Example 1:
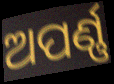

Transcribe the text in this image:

ଅପର୍ଣ୍ଣ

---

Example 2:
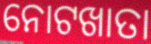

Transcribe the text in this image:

ନୋଟଖାତା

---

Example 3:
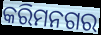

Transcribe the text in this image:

କରିମନଗର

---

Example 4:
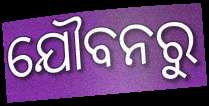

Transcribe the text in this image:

ଯୌବନରୁ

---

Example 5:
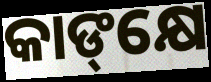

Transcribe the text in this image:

କାଙ୍‌କ୍ଷେ